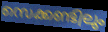
സെക്കണ്ടിലും